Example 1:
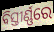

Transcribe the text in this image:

ବିସ୍ତୀର୍ଣ୍ଣରେ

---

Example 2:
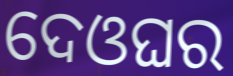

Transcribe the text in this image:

ଦେଓଘର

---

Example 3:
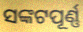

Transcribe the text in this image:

ସଙ୍କଟପୂର୍ଣ୍ଣ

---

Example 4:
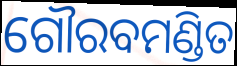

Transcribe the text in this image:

ଗୌରବମଣ୍ଡିତ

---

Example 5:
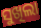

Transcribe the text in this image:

ସୁଖିଲା